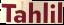
Tahlil